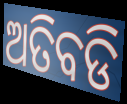
ଅତିବଡି